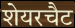
शेयरचैट